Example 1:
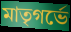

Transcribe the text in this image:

মাতৃগর্ভে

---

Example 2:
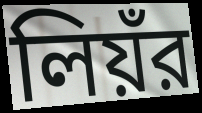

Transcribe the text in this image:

লিয়ঁর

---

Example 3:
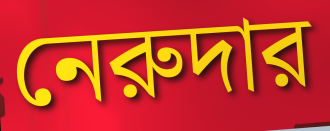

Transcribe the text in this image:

নেরুদার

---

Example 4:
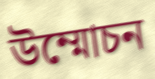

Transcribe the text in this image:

উম্মোচন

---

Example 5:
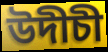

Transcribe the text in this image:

উদীচী